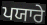
ਪਯਾਰੇ